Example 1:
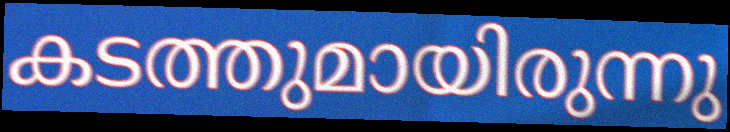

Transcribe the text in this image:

കടത്തുമായിരുന്നു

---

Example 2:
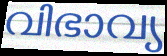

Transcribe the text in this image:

വിഭാവ്യ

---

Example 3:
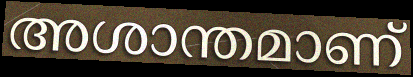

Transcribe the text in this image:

അശാന്തമാണ്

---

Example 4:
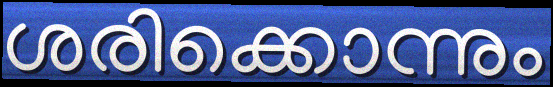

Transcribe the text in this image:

ശരിക്കൊന്നും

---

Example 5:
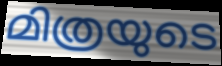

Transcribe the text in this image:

മിത്രയുടെ